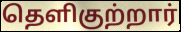
தெளிகுற்றார்